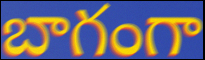
బాగంగా